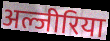
अल्जीरिया